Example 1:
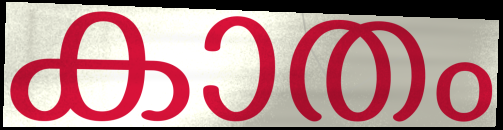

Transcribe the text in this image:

കാതം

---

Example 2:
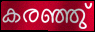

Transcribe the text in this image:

കരഞ്ഞു്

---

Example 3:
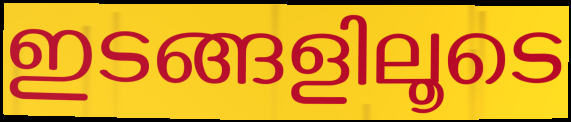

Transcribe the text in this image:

ഇടങ്ങളിലൂടെ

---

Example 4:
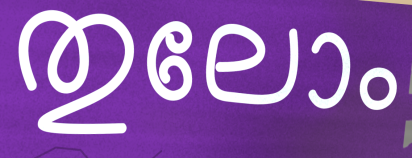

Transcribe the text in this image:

തുലോം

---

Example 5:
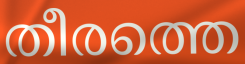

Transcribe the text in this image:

തീരത്തെ